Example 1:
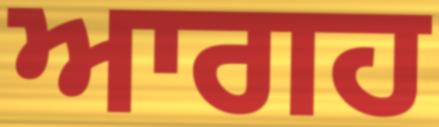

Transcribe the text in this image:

ਆਗਹ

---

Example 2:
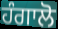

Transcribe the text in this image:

ਹੰਗਾਲੋ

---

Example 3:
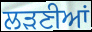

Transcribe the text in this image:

ਲੜਣੀਆਂ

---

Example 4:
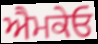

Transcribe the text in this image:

ਐਮਕੇਓ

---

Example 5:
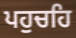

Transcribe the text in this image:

ਪਹੁਚਹਿ